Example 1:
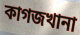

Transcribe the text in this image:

কাগজখানা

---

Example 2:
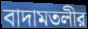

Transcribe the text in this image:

বাদামতলীর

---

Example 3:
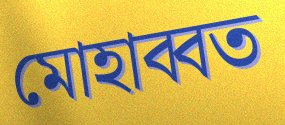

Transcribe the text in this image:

মোহাব্বত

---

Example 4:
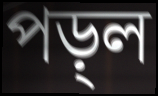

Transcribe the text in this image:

পড়্ল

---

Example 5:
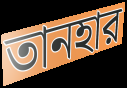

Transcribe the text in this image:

তানহার